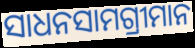
ସାଧନସାମଗ୍ରୀମାନ